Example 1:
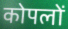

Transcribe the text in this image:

कोपलों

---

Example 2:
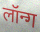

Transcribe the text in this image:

लॉन्ग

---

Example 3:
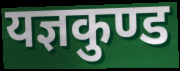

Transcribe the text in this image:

यज्ञकुण्ड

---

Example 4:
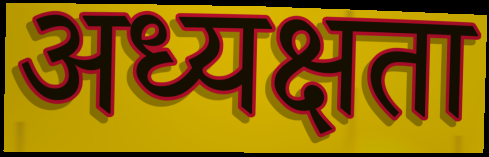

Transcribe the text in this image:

अध्यक्षता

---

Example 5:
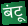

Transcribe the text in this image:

बंटू